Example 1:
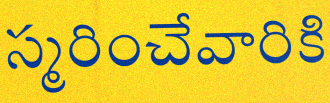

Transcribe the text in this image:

స్మరించేవారికి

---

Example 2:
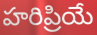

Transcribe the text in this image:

హరిప్రియే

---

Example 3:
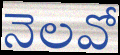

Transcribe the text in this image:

నెలవో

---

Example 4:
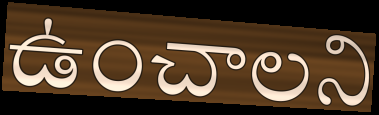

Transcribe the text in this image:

ఉంచాలని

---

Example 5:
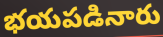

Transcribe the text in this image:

భయపడినారు